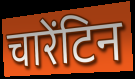
चारेंटिन